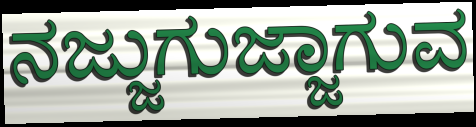
ನಜ್ಜುಗುಜ್ಜಾಗುವ